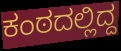
ಕಂಠದಲ್ಲಿದ್ದ